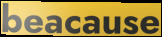
beacause